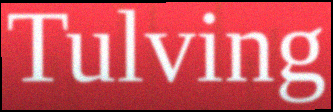
Tulving